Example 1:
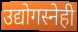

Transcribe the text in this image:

उद्योगस्नेही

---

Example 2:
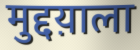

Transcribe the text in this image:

मुद्दय़ाला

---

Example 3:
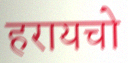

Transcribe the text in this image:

हरायचो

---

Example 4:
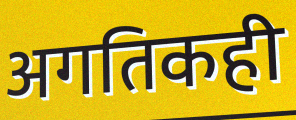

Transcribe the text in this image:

अगतिकही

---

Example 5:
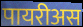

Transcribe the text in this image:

पायरीअस